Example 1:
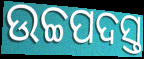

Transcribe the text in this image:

ଉଚ୍ଚପଦସ୍ତ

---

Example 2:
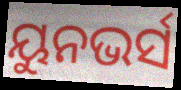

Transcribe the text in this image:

ୟୁନଭର୍ସ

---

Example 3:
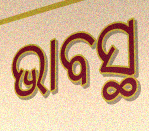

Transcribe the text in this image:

ଭାବସ୍ଥ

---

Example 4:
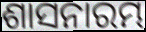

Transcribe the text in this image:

ଶାସନାରମ୍ଭ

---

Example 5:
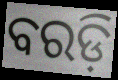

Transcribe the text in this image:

ବରଡ଼ି